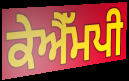
ਕੇਐੱਮਪੀ